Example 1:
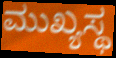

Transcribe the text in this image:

ಮುಖ್ಯಸ್ಥ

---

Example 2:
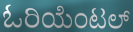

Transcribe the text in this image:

ಓರಿಯೆಂಟಲ್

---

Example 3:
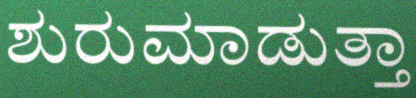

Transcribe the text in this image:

ಶುರುಮಾಡುತ್ತಾ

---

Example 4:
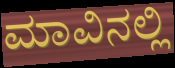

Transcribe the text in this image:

ಮಾವಿನಲ್ಲಿ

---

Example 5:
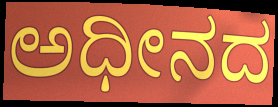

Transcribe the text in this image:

ಅಧೀನದ